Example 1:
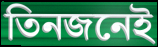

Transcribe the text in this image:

তিনজনেই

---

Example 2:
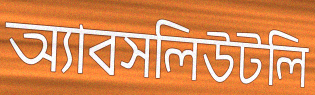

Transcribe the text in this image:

অ্যাবসলিউটলি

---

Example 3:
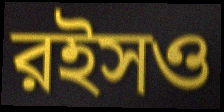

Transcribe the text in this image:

রইসও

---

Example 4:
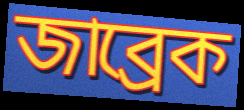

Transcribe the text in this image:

জাব্রেক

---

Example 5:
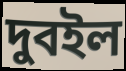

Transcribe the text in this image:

দুবইল